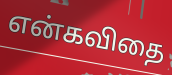
என்கவிதை